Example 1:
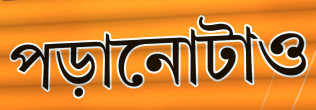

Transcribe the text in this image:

পড়ানোটাও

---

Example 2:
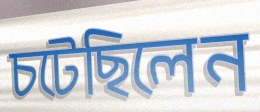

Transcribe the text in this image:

চটেছিলেন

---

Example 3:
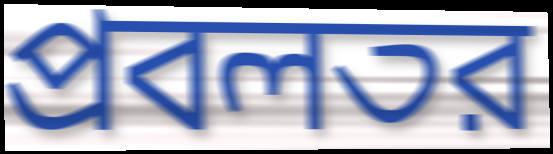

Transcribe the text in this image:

প্রবলতর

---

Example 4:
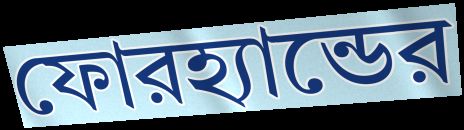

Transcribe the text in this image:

ফোরহ্যান্ডের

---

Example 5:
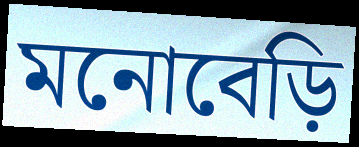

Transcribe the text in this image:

মনোবেড়ি